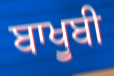
ਬਾਖੂਬੀ